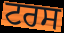
ਟਰਸ